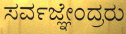
ಸರ್ವಜ್ಞೇಂದ್ರರು